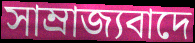
সাম্ৰাজ্যবাদে